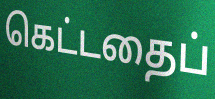
கெட்டதைப்